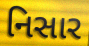
નિસાર